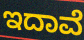
ಇದಾವೆ